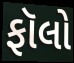
ફૉલો